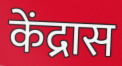
केंद्रास